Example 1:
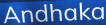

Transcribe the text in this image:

Andhaka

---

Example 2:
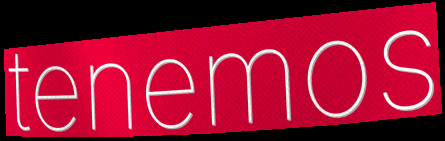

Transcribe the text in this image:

tenemos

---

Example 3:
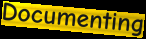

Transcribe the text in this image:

Documenting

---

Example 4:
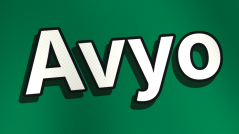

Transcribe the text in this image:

Avyo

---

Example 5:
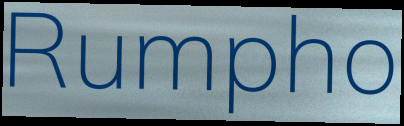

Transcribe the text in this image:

Rumpho